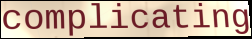
complicating